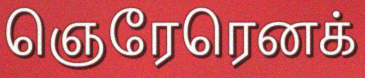
ஞெரேரெனக்